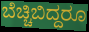
ಬೆಚ್ಚಿಬಿದ್ದರೂ